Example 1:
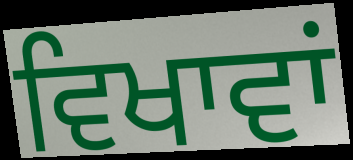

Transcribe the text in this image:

ਵਿਖਾਵਾਂ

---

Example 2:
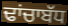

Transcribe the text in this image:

ਢਾਂਚਾਬੱਧ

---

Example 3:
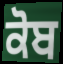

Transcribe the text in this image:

ਕੋਬ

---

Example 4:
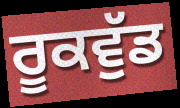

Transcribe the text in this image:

ਰੂਕਵੁੱਡ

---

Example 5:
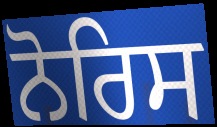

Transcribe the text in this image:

ਨੋਰਿਸ